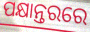
ପକ୍ଷାନ୍ତରରେ